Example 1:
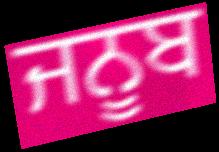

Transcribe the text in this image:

ਜਨੂਬ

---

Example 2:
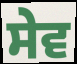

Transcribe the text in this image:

ਸੇਵ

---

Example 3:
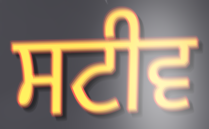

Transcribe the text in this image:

ਸਟੀਵ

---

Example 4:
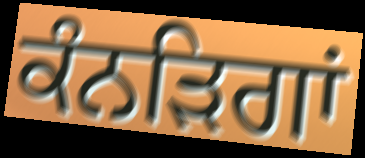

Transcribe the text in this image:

ਕੰਨੜਿਗਾਂ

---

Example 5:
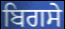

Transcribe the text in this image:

ਬਿਗਸੇ